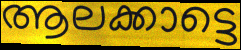
ആലക്കാട്ടെ